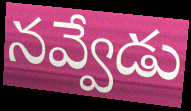
నవ్వేడు